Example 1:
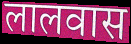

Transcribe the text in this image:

लालवास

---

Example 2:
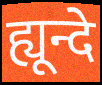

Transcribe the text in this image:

ह्यून्दे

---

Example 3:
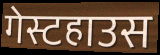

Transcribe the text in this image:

गेस्टहाउस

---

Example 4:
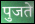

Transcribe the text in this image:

पुजते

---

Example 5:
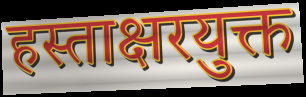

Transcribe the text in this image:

हस्ताक्षरयुक्त